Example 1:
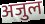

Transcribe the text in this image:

अजुल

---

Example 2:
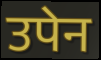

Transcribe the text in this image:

उपेन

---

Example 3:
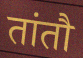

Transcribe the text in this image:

तांतौ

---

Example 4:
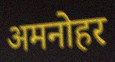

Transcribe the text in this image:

अमनोहर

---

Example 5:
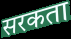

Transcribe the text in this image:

सरकता